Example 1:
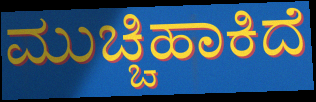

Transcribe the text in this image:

ಮುಚ್ಚಿಹಾಕಿದೆ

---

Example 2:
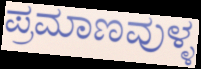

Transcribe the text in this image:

ಪ್ರಮಾಣವುಳ್ಳ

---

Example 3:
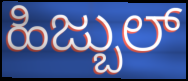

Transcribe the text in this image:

ಹಿಜ್ಬುಲ್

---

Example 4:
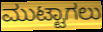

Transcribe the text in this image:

ಮುಟ್ಟಾಗಲು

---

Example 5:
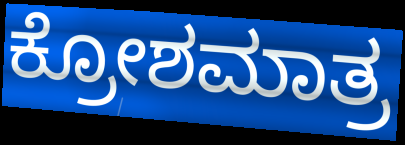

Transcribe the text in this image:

ಕ್ರೋಶಮಾತ್ರ